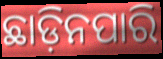
ଛାଡ଼ିନପାରି